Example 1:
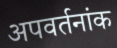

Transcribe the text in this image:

अपवर्तनांक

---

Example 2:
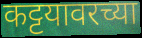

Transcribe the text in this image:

कट्टयावरच्या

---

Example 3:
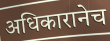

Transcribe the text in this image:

अधिकारानेच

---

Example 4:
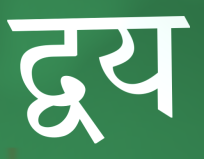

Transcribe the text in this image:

द्वय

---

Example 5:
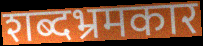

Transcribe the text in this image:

शब्दभ्रमकार